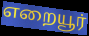
எறையூர்